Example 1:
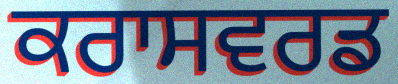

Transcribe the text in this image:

ਕਰਾਸਵਰਡ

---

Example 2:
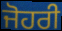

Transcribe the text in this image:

ਜੋਹਰੀ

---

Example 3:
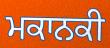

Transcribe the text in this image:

ਮਕਾਨਕੀ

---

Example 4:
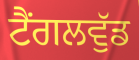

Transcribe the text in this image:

ਟੈਂਗਲਵੁੱਡ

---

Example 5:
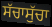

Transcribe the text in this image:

ਸੱਚਾਸੁੱਚਾ